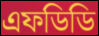
এফডিডি